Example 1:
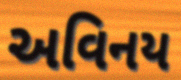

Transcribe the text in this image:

અવિનય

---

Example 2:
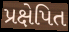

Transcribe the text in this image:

પ્રક્ષેપિત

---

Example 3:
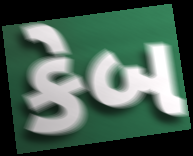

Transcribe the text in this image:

કેબ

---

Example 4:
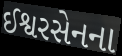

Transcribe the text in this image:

ઈશ્વરસેનના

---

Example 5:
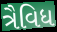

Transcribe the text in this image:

ત્રૈવિધ